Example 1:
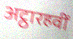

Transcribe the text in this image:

अट्ठारहवीं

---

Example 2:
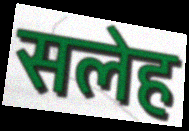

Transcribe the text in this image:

सलेह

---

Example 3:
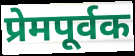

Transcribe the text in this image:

प्रेमपूर्वक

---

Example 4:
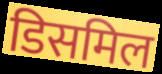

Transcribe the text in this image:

डिसमिल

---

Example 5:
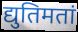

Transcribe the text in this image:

द्युतिमतां